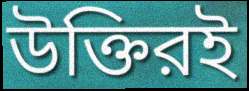
উক্তিরই